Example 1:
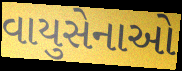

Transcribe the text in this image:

વાયુસેનાઓ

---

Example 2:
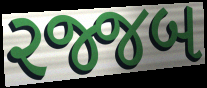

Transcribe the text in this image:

રજ્જબ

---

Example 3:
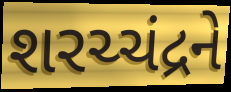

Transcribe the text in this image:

શરચ્ચંદ્રને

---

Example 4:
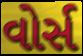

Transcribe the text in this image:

વોર્સ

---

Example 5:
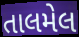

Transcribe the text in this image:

તાલમેલ